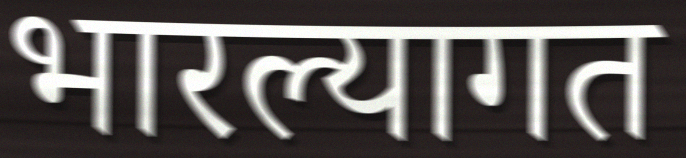
भारल्यागत